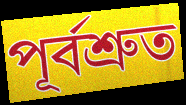
পূর্বশ্রুত